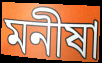
মনীষা